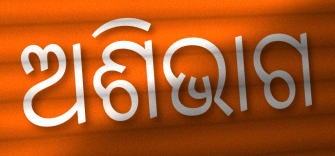
ଅଶିଭାଗ